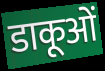
डाकूओं